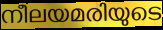
നീലയമരിയുടെ